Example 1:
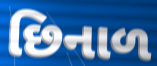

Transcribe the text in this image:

છિનાળ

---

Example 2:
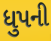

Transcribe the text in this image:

ધુપની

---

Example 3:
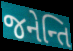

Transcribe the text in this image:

જનેન્તિ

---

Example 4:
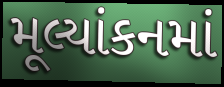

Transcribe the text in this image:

મૂલ્યાંકનમાં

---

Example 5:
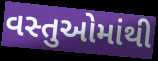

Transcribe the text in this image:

વસ્તુઓમાંથી